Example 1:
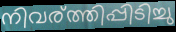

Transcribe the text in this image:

നിവര്ത്തിപ്പിടിച്ചു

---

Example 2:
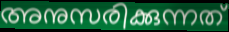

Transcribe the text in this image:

അനുസരിക്കുന്നത്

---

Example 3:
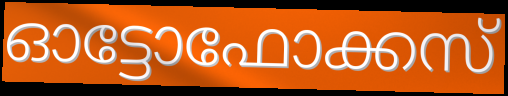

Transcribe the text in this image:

ഓട്ടോഫോക്കസ്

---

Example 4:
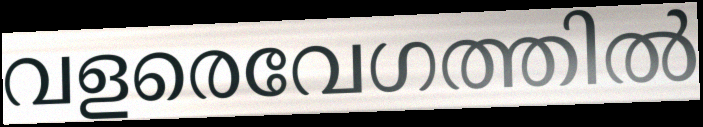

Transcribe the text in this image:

വളരെവേഗത്തിൽ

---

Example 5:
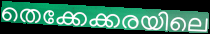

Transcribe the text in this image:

തെക്കേക്കരയിലെ